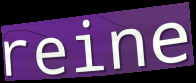
reine